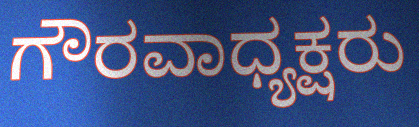
ಗೌರವಾಧ್ಯಕ್ಷರು